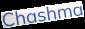
Chashma